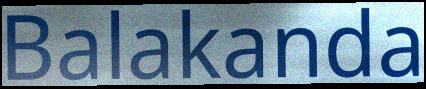
Balakanda